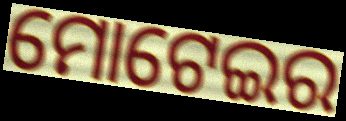
ମୋଟେଇର